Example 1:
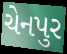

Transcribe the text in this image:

ચેનપુર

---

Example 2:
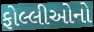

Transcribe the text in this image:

ફોલ્લીઓનો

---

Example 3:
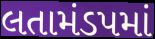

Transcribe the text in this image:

લતામંડપમાં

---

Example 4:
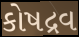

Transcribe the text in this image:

કોષદ્રવ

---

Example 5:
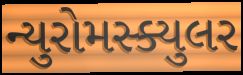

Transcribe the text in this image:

ન્યુરોમસ્ક્યુલર